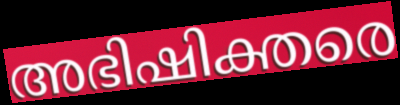
അഭിഷിക്തരെ